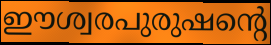
ഈശ്വരപുരുഷന്റെ